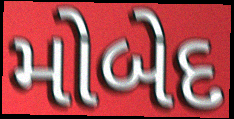
મોબેદ